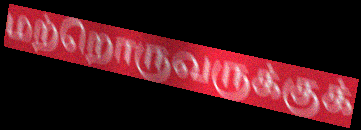
மற்றொருவருக்குக்